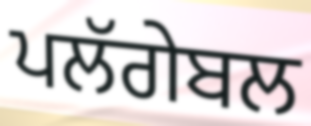
ਪਲੱਗੇਬਲ